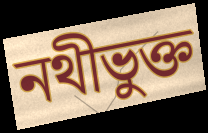
নথীভুক্ত